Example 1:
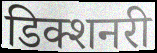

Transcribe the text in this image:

डिक्शनरी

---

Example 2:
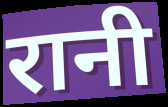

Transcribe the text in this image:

रानी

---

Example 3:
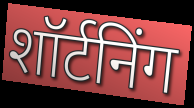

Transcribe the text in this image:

शॉर्टनिंग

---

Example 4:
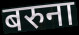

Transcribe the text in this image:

बरुना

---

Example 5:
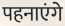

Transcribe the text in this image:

पहनाएंगे